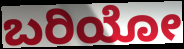
ಬರಿಯೋ